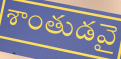
శాంతుడవై